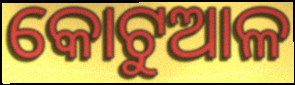
କୋଟୁଆଳ